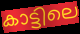
കാട്ടിലെ